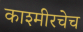
काश्मीरचेच